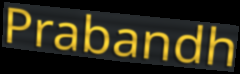
Prabandh